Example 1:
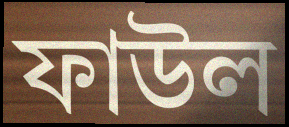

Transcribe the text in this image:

ফাউল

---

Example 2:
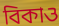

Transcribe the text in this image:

বিকাও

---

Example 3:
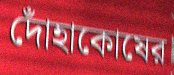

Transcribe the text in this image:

দোঁহাকোষের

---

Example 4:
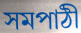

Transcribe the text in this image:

সমপাঠী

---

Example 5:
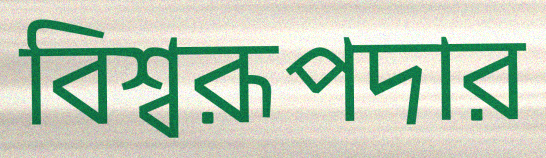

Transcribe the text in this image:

বিশ্বরূপদার